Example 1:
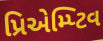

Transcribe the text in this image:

પ્રિએમ્પ્ટિવ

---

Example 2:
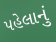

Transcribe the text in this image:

પહેલાનું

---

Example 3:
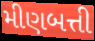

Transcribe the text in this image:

મીણબત્તી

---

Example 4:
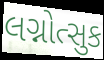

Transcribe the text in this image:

લગ્નોત્સુક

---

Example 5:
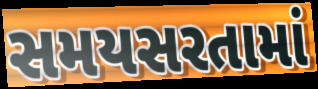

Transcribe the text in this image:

સમયસરતામાં